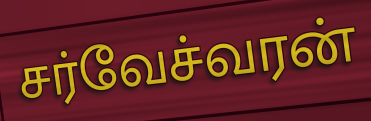
சர்வேச்வரன்